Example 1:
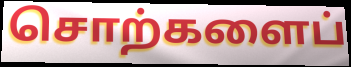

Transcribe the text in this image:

சொற்களைப்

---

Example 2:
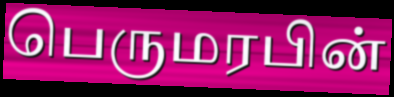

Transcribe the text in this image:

பெருமரபின்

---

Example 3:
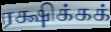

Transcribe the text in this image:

ரக்ஷிக்கக்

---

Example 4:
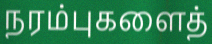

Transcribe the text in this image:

நரம்புகளைத்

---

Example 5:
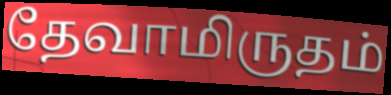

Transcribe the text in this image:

தேவாமிருதம்